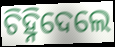
ଚିହ୍ନିଦେଲେ